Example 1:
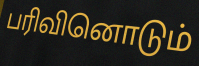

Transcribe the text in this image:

பரிவினொடும்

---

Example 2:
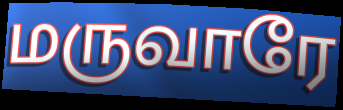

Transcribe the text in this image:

மருவாரே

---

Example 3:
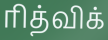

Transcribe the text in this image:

ரித்விக்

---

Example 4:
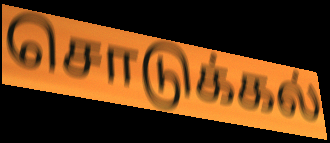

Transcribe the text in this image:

சொடுக்கல்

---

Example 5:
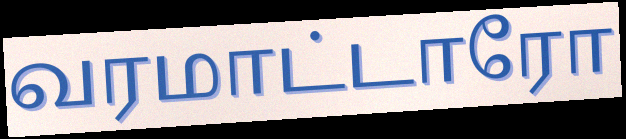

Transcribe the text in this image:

வரமாட்டாரோ